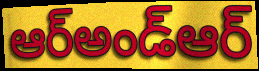
ఆర్అండ్ఆర్